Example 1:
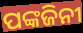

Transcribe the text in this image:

ପଙ୍କଜିନୀ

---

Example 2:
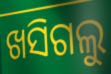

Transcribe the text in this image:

ଖସିଗଲୁ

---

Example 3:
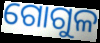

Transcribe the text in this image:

ଗୋଗୁଳ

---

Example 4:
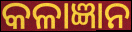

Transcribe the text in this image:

କଳାଜ୍ଞାନ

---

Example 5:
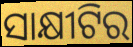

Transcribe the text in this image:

ସାକ୍ଷୀଟିର